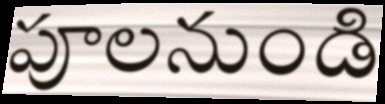
పూలనుండి